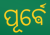
ପୂର୍ଵେ